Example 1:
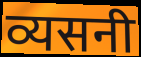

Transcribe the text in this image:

व्यसनी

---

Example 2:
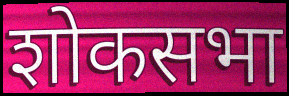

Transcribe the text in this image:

शोकसभा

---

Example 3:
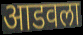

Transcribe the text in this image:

आडवला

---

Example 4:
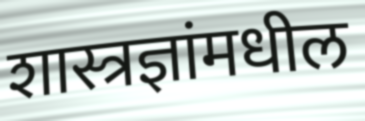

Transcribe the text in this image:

शास्त्रज्ञांमधील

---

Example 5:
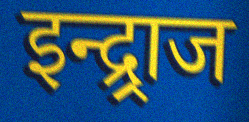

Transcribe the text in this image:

इन्द्र्राज